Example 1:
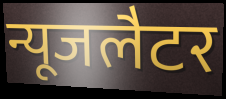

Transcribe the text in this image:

न्यूजलैटर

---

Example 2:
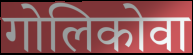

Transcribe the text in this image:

गोलिकोवा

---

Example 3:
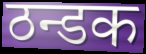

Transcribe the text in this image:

ठन्डक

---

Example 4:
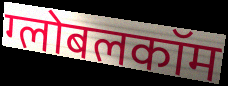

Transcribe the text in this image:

ग्लोबलकॉम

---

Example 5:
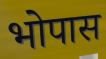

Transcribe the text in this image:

भोपास